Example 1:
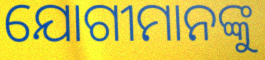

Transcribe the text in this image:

ଯୋଗୀମାନଙ୍କୁ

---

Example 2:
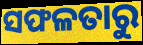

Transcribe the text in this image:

ସଫଳତାରୁ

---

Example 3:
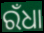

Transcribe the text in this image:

ରଁଧା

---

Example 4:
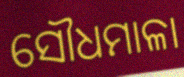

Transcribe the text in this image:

ସୌଧମାଳା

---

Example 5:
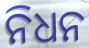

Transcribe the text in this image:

ନିଧନ